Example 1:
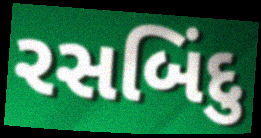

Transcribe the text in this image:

રસબિંદુ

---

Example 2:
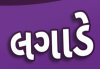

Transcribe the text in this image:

લગાડે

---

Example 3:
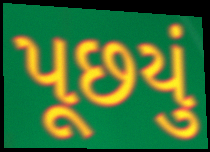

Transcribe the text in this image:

પૂછયું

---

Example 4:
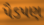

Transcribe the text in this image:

પૈડપણ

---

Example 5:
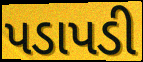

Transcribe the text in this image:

પડાપડી